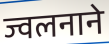
ज्वलनाने